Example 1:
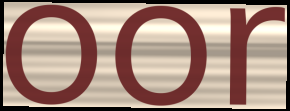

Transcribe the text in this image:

oor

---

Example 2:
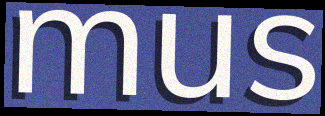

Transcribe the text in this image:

mus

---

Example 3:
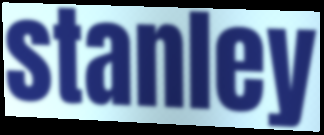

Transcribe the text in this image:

stanley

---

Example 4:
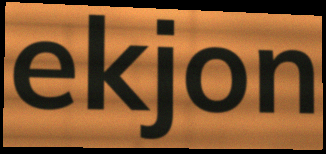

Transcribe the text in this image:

ekjon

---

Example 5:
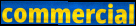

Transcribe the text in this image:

commercial